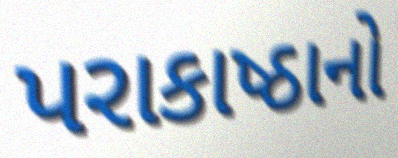
પરાકાષ્ઠાનો